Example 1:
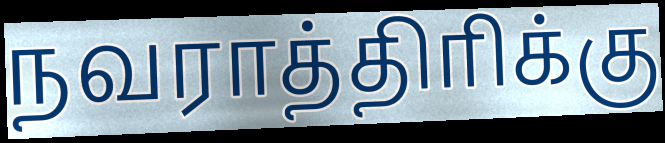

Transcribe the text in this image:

நவராத்திரிக்கு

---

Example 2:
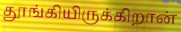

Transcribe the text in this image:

தூங்கியிருக்கிறான்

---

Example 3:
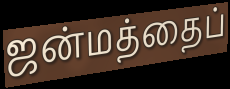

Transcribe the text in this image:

ஜன்மத்தைப்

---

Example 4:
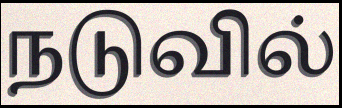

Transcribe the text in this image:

நடுவில்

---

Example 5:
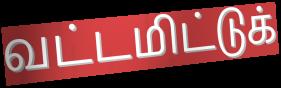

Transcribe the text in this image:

வட்டமிட்டுக்